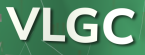
VLGC